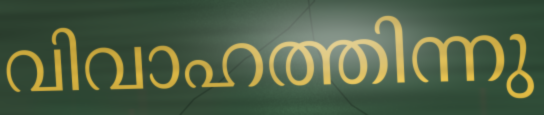
വിവാഹത്തിന്നു